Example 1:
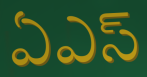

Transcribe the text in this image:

ఏఎస్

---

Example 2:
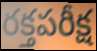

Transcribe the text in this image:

రక్తపరీక్ష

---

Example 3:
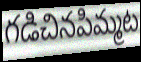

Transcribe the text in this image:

గడిచినపిమ్మట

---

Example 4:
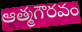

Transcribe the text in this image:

ఆత్మగౌరవం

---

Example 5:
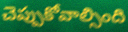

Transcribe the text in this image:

చెప్పుకోవాల్సింది